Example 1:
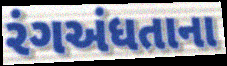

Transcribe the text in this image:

રંગઅંધતાના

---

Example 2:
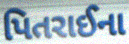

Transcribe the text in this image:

પિતરાઈના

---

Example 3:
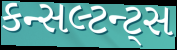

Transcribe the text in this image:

કન્સલ્ટન્ટ્સ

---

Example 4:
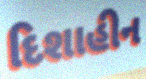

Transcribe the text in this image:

દિશાહીન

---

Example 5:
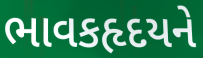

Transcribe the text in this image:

ભાવકહૃદયને